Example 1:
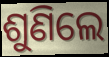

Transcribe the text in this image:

ଶୁଣିଲେ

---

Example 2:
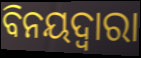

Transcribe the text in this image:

ବିନୟଦ୍ୱାରା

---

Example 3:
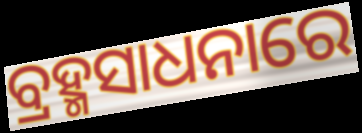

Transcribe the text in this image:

ବ୍ରହ୍ମସାଧନାରେ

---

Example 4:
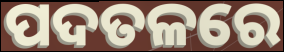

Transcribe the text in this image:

ପଦତଳରେ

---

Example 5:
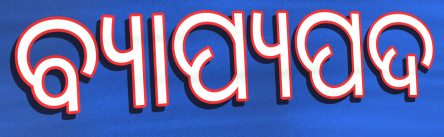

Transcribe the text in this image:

ବ୍ୟାପ୍ୟପଦ